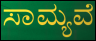
ಸಾಮ್ಯವೆ